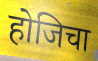
होजिचा